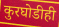
कुरघोडीही